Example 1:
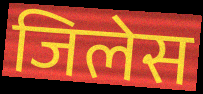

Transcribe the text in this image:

जिलेस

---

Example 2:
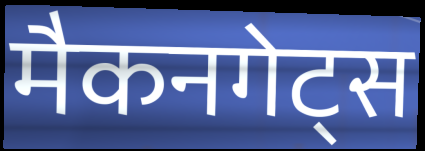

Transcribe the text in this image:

मैकनगेट्स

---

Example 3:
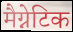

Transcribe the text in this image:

मैग्नेटिक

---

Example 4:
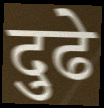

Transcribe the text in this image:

दुढे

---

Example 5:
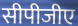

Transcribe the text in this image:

सीपीजीए